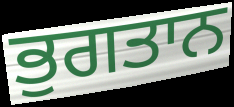
ਭੁਗਤਾਨ